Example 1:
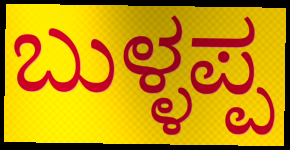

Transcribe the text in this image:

ಬುಳ್ಳಪ್ಪ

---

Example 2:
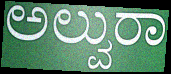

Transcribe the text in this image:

ಅಲ್ವುರಾ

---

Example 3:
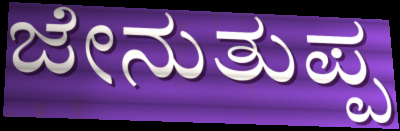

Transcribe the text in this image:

ಜೇನುತುಪ್ಪ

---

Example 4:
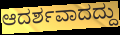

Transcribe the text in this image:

ಆದರ್ಶವಾದದ್ದು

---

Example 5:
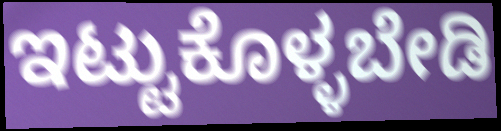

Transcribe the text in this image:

ಇಟ್ಟುಕೊಳ್ಳಬೇಡಿ